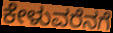
ಕೇಳುವರೆನಗೆ